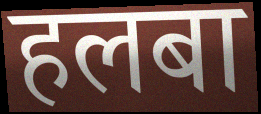
हलबा